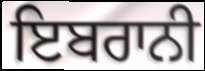
ਇਬਰਾਨੀ